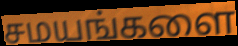
சமயங்களை